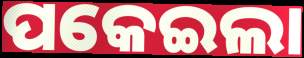
ପକେଇଲା